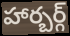
హార్బర్గ్